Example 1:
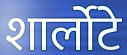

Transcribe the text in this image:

शार्लोटे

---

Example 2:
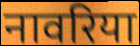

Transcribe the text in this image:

नावरिया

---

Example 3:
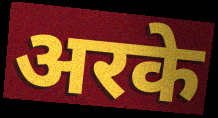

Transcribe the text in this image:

अरके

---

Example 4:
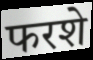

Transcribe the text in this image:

फरशे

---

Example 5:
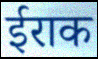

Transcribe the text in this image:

ईराक